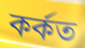
কৰ্কত